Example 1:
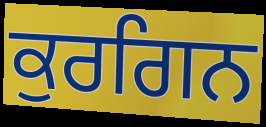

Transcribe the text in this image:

ਕੁਰਗਿਨ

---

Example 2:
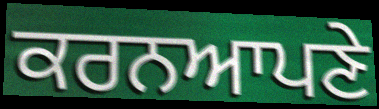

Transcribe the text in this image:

ਕਰਨਆਪਣੇ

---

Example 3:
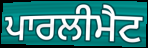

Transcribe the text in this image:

ਪਾਰਲੀਮੈਟ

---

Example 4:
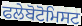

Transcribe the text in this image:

ਫਲੇਬੋਟੋਮਿਸਟ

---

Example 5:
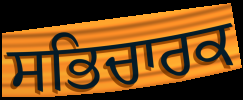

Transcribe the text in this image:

ਸਭਿਚਾਰਕ